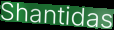
Shantidas